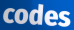
codes